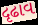
દૃઢાવ